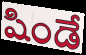
షిండే